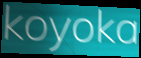
koyoka